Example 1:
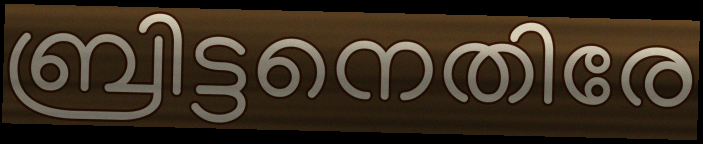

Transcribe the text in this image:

ബ്രിട്ടനെതിരേ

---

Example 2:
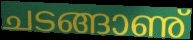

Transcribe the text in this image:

ചടങ്ങാണു്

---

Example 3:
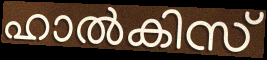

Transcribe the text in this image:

ഹാൽകിസ്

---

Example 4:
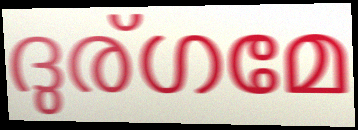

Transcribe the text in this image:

ദുര്ഗമേ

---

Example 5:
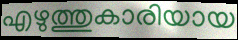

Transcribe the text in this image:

എഴുത്തുകാരിയായ